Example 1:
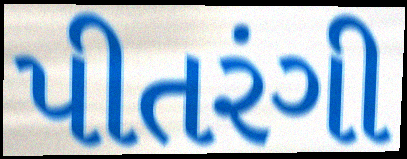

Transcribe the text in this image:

પીતરંગી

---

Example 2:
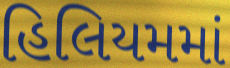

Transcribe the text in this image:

હિલિયમમાં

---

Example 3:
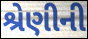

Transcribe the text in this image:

શ્રેણીની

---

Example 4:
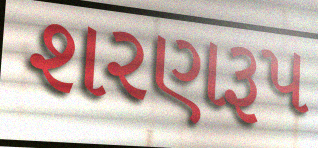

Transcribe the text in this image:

શરણરૂપ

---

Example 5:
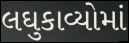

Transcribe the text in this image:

લઘુકાવ્યોમાં